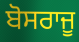
ਬੋਸਰਾਜੂ